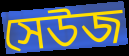
সেউজ